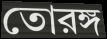
তোরঙ্গ